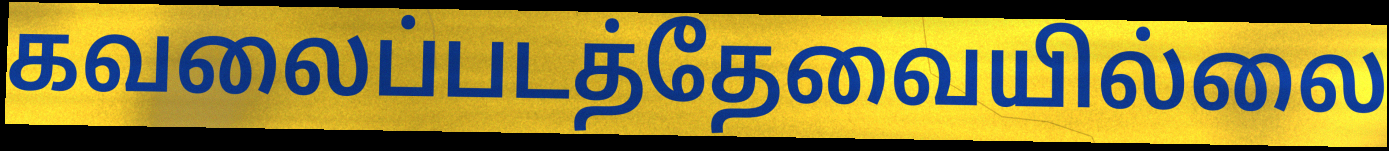
கவலைப்படத்தேவையில்லை